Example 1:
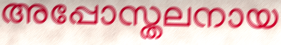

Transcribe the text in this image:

അപ്പോസ്തലനായ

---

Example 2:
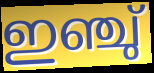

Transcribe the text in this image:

ഇഞ്ചു്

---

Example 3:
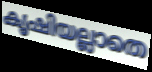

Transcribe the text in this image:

കൃഷിയല്ലാതെ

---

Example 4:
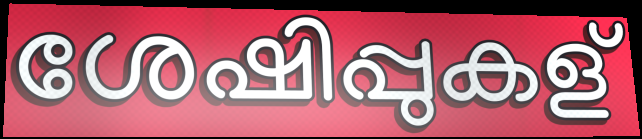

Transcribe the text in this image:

ശേഷിപ്പുകള്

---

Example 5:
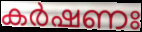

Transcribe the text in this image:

കർഷണഃ